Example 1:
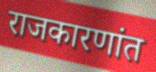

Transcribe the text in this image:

राजकारणांत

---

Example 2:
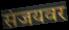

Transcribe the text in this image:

संजयवर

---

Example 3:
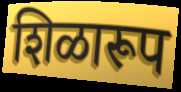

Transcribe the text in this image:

शिळारूप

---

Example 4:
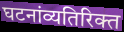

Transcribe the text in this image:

घटनांव्यतिरिक्त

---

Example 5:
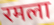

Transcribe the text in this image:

रमला